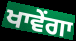
ਖਾਵੇਂਗਾ